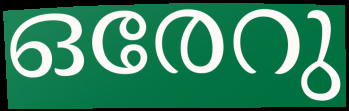
ഒരേറു